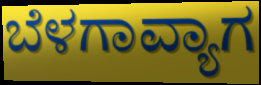
ಬೆಳಗಾವ್ಯಾಗ